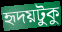
হৃদয়টুকু